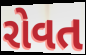
રોવત